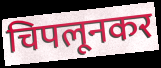
चिपलूनकर